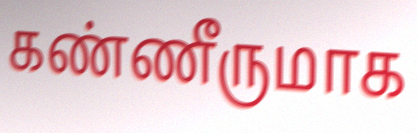
கண்ணீருமாக